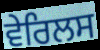
ਵੇਰਿਲਸ